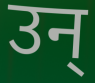
उन्